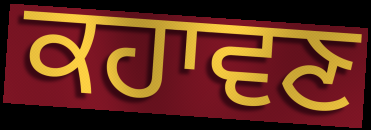
ਕਹਾਵਣ